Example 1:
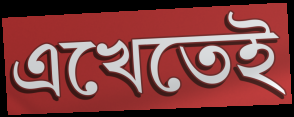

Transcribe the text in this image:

এখেতেই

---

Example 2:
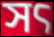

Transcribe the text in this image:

সৎ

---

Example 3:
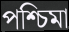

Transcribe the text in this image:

পশ্চিমা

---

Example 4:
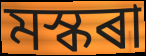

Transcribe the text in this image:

মস্কৰা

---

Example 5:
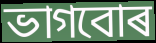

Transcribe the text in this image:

ভাগবোৰ